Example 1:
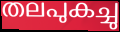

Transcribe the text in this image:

തലപുകച്ചു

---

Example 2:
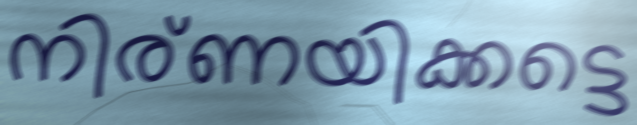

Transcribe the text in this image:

നിര്ണയിക്കട്ടെ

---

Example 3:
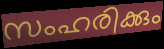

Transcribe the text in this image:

സംഹരിക്കും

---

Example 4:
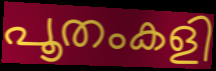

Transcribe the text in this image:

പൂതംകളി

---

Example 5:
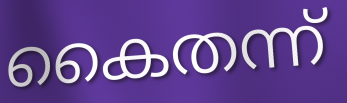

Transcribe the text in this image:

കൈതന്ന്